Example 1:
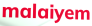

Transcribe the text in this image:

malaiyem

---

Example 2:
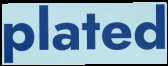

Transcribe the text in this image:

plated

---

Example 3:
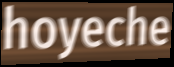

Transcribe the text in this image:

hoyeche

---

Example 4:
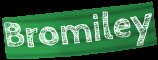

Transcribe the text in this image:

Bromiley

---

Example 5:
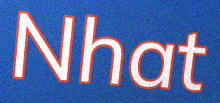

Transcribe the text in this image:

Nhat